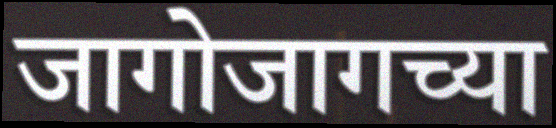
जागोजागच्या